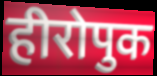
हीरोपुक